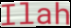
Ilah